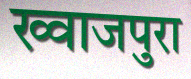
ख्वाजपुरा